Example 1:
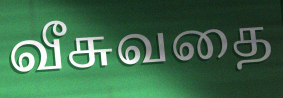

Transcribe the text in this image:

வீசுவதை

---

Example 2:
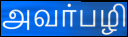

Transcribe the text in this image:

அவர்பழி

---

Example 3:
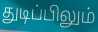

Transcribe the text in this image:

துடிப்பிலும்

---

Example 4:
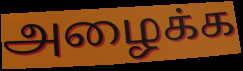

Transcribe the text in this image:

அழைக்க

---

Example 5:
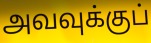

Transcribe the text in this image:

அவவுக்குப்